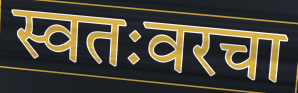
स्वतःवरचा